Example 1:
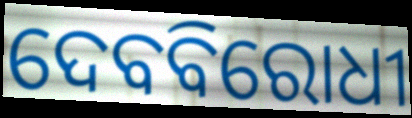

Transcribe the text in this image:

ଦେବବିରୋଧୀ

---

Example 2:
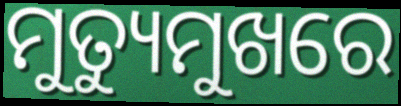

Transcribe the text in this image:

ମୁତ୍ୟୁମୁଖରେ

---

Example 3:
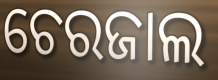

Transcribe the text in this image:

ଚେରଜାଲ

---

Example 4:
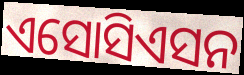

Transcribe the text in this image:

ଏସୋସିଏସନ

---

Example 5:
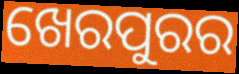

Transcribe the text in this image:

ଖେରପୁରର